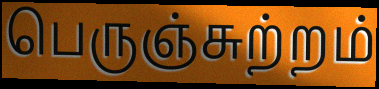
பெருஞ்சுற்றம்